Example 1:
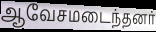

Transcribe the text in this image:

ஆவேசமடைந்தனர்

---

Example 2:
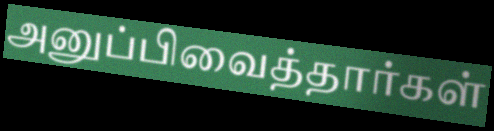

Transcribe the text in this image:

அனுப்பிவைத்தார்கள்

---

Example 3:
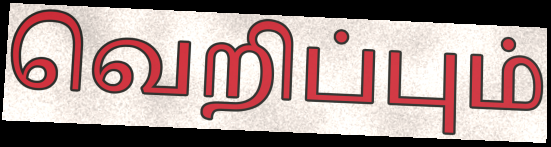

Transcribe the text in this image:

வெறிப்பும்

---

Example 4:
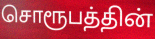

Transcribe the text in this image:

சொரூபத்தின்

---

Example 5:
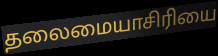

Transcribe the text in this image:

தலைமையாசிரியை